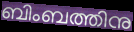
ബിംബത്തിനു